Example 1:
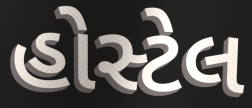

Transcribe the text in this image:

હોસ્ટેલ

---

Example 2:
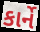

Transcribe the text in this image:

કાર્ને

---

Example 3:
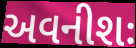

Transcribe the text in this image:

અવનીશઃ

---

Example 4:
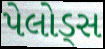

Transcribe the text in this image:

પેલોડ્સ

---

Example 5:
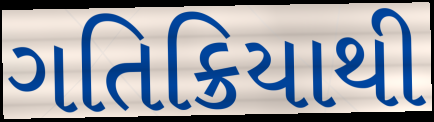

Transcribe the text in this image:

ગતિક્રિયાથી